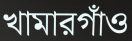
খামারগাঁও